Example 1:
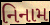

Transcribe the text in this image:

નિનામ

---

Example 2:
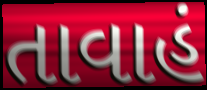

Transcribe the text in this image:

તાવાહં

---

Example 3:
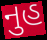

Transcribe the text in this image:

નુહ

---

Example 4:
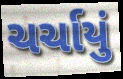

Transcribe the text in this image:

ચર્ચાયું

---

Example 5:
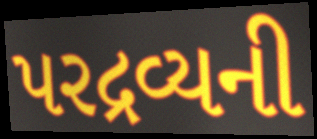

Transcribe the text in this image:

પરદ્રવ્યની